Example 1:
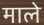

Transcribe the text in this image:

माले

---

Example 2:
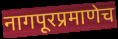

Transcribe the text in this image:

नागपूरप्रमाणेच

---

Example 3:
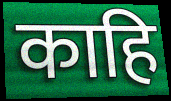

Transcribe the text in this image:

काहि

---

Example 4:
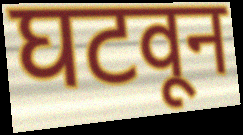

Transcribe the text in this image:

घटवून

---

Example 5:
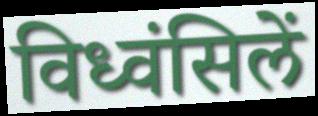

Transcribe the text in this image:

विध्वंसिलें